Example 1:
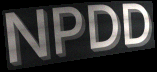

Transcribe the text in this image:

NPDD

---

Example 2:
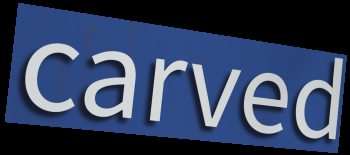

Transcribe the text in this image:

carved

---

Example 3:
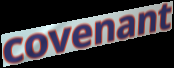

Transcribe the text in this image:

covenant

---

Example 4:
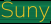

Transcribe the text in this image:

Suny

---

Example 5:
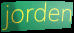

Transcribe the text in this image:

jorden